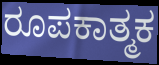
ರೂಪಕಾತ್ಮಕ